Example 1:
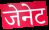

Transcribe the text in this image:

जेनेट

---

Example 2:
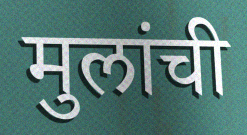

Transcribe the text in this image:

मुलांची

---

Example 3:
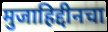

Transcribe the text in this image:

मुजाहिद्दीनचा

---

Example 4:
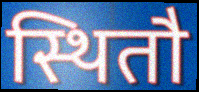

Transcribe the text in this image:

स्थितौ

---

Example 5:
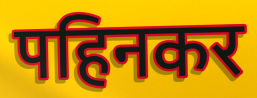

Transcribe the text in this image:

पहिनकर